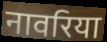
नावरिया